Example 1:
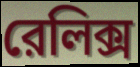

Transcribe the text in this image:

রেলিক্স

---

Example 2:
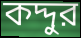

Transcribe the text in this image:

কদ্দুর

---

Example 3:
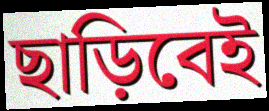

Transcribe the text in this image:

ছাড়িবেই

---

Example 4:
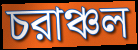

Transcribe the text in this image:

চরাঞ্চল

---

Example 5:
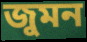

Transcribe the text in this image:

জুমন